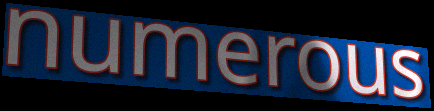
numerous